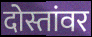
दोस्तांवर